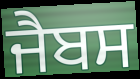
ਜੈਬਸ